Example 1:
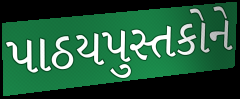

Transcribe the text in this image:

પાઠયપુસ્તકોને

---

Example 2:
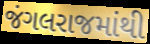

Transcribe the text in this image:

જંગલરાજમાંથી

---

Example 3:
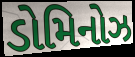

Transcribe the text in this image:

ડોમિનોઝ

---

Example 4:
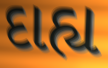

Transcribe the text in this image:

દાહ્ય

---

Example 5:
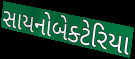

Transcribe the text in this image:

સાયનોબેક્ટેરિયા